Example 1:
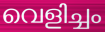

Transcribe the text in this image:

വെളിച്ചം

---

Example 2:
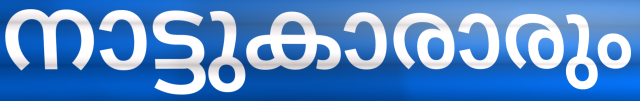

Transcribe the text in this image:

നാട്ടുകാരാരും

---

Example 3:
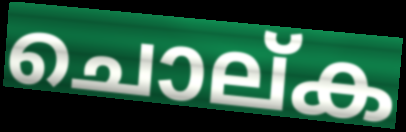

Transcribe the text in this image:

ചൊല്ക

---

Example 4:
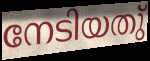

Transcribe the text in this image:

നേടിയതു്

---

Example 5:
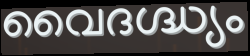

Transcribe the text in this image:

വൈദഗ്ദ്ധ്യം